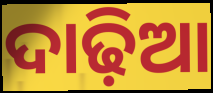
ଦାଢ଼ିଆ